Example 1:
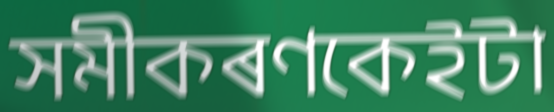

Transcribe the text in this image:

সমীকৰণকেইটা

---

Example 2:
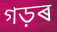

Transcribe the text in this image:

গড়ৰ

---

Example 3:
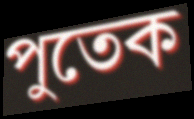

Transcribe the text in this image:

পুতেক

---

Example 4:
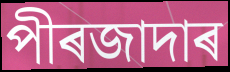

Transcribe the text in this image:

পীৰজাদাৰ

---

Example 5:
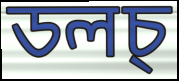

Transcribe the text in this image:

ডলচ্